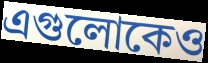
এগুলোকেও